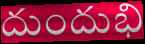
దుందుభి